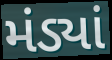
મંડ્યાં